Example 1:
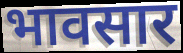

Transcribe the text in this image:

भावसार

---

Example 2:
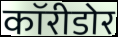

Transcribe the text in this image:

कॉरीडोर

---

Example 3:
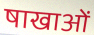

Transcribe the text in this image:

षाखाओं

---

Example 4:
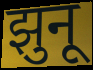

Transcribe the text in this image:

झुनू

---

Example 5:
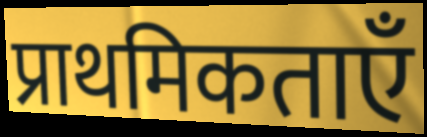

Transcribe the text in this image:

प्राथमिकताएँ